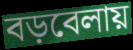
বড়বেলায়